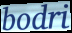
bodri